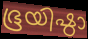
ഭൂയിഷ്ഠാ